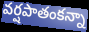
వర్షపాతంకన్నా